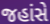
જહાંસે